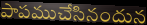
పాపముచేసినందున